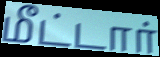
மீட்டார்